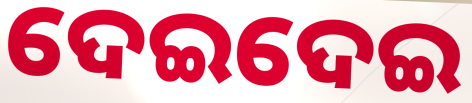
ଦେଇଦେଇ